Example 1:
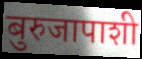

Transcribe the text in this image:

बुरुजापाशी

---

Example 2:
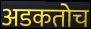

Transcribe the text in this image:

अडकतोच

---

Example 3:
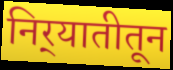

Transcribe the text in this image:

निर्यातीतून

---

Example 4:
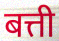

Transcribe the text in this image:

बत्ती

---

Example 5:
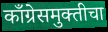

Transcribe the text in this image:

काँग्रेसमुक्तीचा